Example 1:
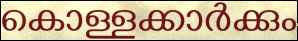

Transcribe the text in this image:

കൊള്ളക്കാർക്കും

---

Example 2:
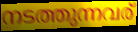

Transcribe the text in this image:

നടത്തുന്നവര്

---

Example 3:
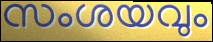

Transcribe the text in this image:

സംശയവും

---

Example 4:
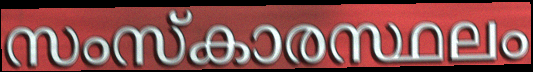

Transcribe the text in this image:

സംസ്കാരസ്ഥലം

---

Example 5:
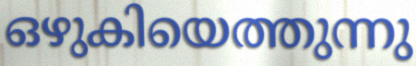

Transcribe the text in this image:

ഒഴുകിയെത്തുന്നു